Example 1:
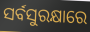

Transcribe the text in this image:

ସର୍ବସୁରକ୍ଷାରେ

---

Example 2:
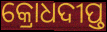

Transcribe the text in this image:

କ୍ରୋଧଦୀପ୍ତ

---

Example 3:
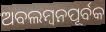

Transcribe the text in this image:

ଅବଲମ୍ୱନପୂର୍ବକ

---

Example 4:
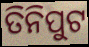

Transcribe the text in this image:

ତିନିପୁଟ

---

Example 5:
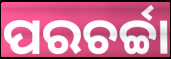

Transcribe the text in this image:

ପରଚର୍ଚ୍ଚା